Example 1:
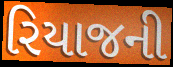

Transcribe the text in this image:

રિયાજની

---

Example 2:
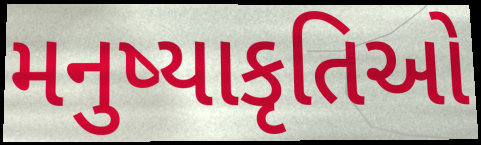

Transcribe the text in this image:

મનુષ્યાકૃતિઓ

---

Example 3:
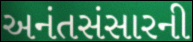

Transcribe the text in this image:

અનંતસંસારની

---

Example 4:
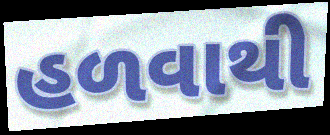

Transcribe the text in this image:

હળવાથી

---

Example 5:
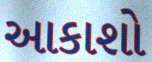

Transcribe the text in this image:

આકાશો